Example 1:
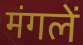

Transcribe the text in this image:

मंगलें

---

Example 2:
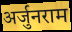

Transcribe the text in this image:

अर्जुनराम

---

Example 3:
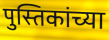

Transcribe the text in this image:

पुस्तिकांच्या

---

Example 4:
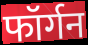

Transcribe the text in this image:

फॉर्गन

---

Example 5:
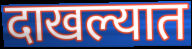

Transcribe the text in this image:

दाखल्यात